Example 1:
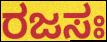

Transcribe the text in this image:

ರಜಸಃ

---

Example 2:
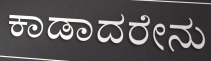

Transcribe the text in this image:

ಕಾಡಾದರೇನು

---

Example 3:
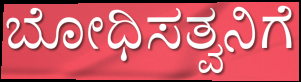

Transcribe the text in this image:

ಬೋಧಿಸತ್ವನಿಗೆ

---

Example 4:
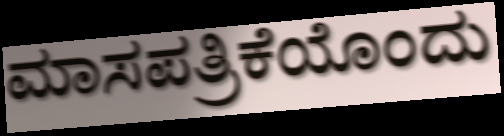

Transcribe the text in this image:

ಮಾಸಪತ್ರಿಕೆಯೊಂದು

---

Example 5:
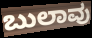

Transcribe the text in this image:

ಬುಲಾವು